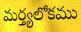
మర్త్యలోకము